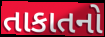
તાકાતનો